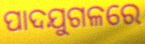
ପାଦଯୁଗଳରେ